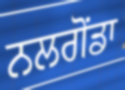
ਨਲਗੋਂਡਾ